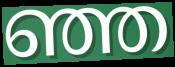
ഞ്ഞ